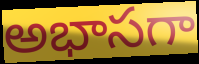
అభాసగా